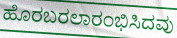
ಹೊರಬರಲಾರಂಭಿಸಿದವು